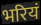
भरियं